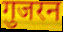
गुजरन